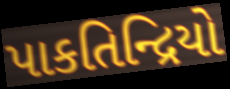
પાકતિન્દ્રિયો